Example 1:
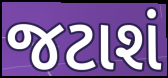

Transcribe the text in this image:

જટાશં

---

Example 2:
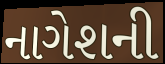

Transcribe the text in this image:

નાગેશની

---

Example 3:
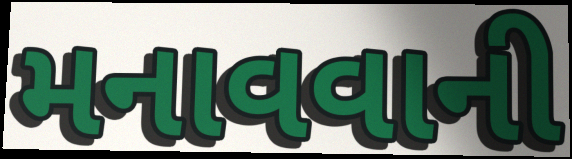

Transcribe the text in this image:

મનાવવાની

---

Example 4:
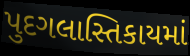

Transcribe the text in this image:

પુદગલાસ્તિકાયમાં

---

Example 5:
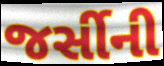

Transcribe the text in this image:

જર્સીની